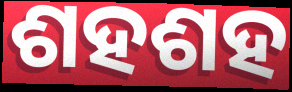
ଶହଶହ